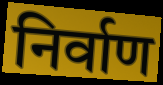
निर्वाण